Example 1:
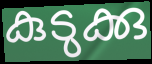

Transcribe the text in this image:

കുടുക്കു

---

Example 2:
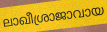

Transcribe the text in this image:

ലാഖീശ്രാജാവായ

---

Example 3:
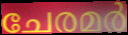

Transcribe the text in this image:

ചേരമർ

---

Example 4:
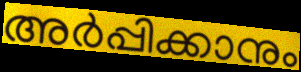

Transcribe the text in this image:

അർപ്പിക്കാനും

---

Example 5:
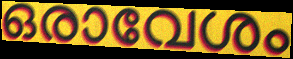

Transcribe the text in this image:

ഒരാവേശം